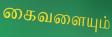
கைவளையும்